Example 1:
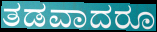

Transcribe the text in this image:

ತಡವಾದರೂ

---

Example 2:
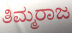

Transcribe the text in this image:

ತಿಮ್ಮರಾಜ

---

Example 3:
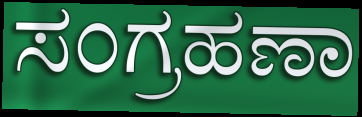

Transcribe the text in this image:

ಸಂಗ್ರಹಣಾ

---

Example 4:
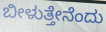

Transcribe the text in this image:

ಬೀಳುತ್ತೇನೆಂದು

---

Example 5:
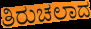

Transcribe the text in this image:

ತಿರುಚಲಾದ